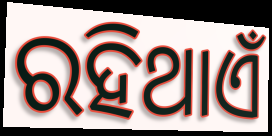
ରହିଥାଏଁ